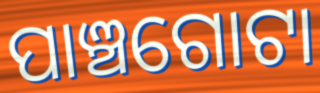
ପାଞ୍ଚଗୋଟା